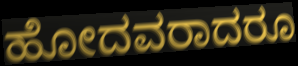
ಹೋದವರಾದರೂ